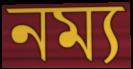
নম্য